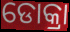
ଡୋକ୍ରା